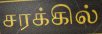
சரக்கில்